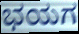
ಭಯಗ